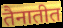
तैनातीत